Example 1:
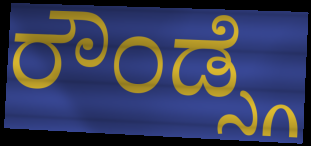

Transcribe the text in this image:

ರೌಂಡ್ಸ್ಗೆ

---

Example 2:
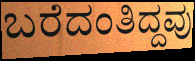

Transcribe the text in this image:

ಬರೆದಂತಿದ್ದವು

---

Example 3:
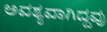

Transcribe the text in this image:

ಅವಶ್ಯವಾಗಿದ್ದವು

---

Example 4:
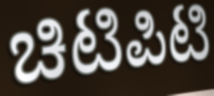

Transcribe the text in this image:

ಚಿಟಿಪಿಟಿ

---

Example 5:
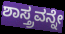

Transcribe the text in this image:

ಶಾಸ್ತ್ರವನ್ನೇ